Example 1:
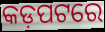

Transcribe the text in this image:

କଡ଼ପଟରେ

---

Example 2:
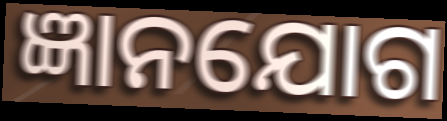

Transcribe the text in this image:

ଜ୍ଞାନଯୋଗ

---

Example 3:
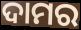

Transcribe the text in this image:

ଦାମର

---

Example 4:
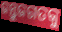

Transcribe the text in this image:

ଜନ୍ତୁଜଗତକୁ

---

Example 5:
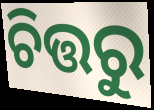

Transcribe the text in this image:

ଚିତ୍ତରୁ